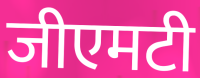
जीएमटी